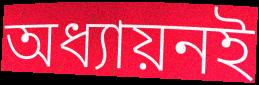
অধ্যায়নই